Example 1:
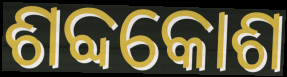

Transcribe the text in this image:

ଶବ୍ଦକୋଶ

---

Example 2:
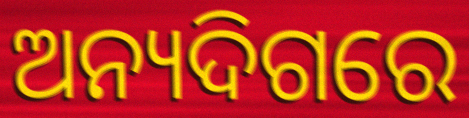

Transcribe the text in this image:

ଅନ୍ୟଦିଗରେ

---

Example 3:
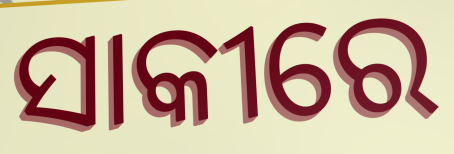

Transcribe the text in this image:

ସାକୀରେ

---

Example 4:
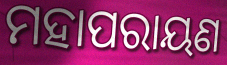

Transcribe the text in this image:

ମହାପରାୟଣ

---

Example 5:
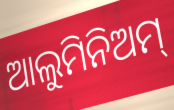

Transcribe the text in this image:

ଆଲୁମିନିଅମ୍